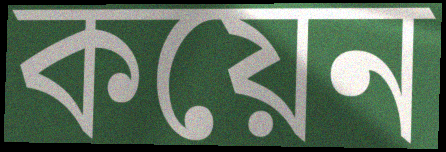
কয়েন